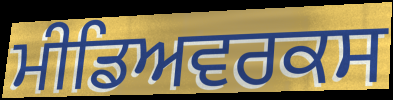
ਮੀਡਿਅਵਰਕਸ